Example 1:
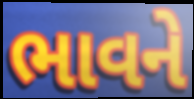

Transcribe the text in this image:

ભાવને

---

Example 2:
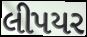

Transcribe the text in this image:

લીપયર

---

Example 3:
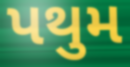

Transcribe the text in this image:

પથુમ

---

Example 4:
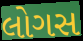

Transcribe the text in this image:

લોગસ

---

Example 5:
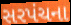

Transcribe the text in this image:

સરપંચના